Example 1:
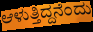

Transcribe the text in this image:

ಆಳುತ್ತಿದ್ದನೆಂದು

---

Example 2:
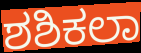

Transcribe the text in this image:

ಶಶಿಕಲಾ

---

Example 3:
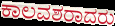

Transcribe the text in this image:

ಕಾಲವಶರಾದರು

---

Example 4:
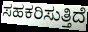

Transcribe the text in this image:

ಸಹಕರಿಸುತ್ತಿದೆ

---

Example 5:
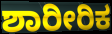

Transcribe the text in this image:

ಶಾರೀರಿಕ